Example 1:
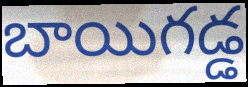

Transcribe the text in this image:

బాయిగడ్డ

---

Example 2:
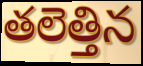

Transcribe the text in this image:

తలెత్తిన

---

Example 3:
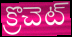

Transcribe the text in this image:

క్రొచెట్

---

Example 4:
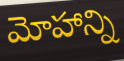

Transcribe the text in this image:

మోహాన్ని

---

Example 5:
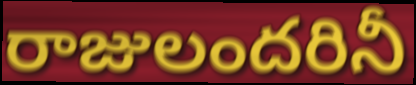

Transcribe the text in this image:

రాజులందరినీ